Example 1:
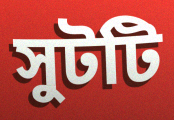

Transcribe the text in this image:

সুটটি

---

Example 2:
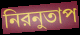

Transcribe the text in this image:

নিরনুতাপ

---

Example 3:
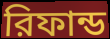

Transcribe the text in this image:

রিফান্ড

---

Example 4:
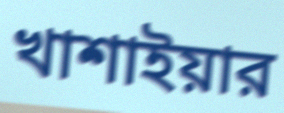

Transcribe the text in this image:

খাশাইয়ার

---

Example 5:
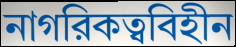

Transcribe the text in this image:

নাগরিকত্ববিহীন